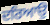
ਦਰਿਆਉ